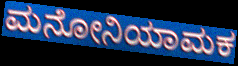
ಮನೋನಿಯಾಮಕ